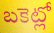
బకెట్లో